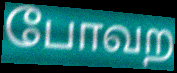
போவற